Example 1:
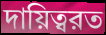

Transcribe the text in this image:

দায়িত্বরত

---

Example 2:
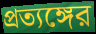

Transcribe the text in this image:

প্রত্যঙ্গের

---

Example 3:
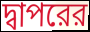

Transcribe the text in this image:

দ্বাপরের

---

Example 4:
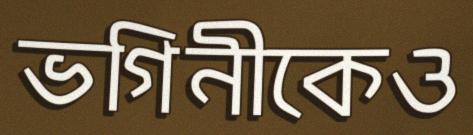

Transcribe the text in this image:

ভগিনীকেও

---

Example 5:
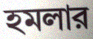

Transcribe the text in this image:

হমলার